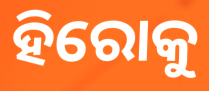
ହିରୋକୁ